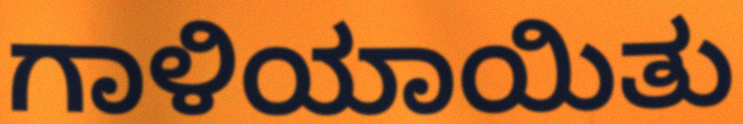
ಗಾಳಿಯಾಯಿತು